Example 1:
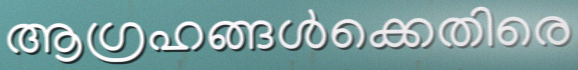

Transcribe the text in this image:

ആഗ്രഹങ്ങൾക്കെതിരെ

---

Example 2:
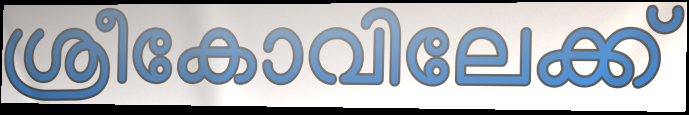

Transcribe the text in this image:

ശ്രീകോവിലേക്ക്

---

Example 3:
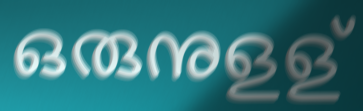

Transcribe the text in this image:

ഒരുനുളള്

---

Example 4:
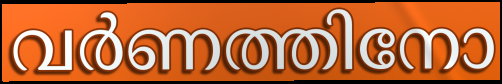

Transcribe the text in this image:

വർണത്തിനോ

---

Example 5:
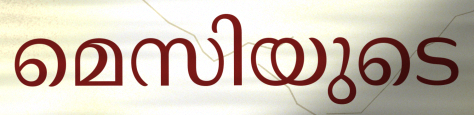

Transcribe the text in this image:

മെസിയുടെ